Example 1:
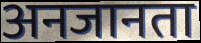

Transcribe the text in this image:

अनजानता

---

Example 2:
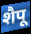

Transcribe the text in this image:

शैपू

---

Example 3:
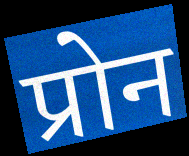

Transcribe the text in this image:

प्रोन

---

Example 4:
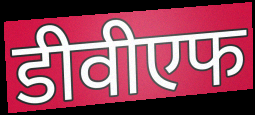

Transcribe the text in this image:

डीवीएफ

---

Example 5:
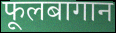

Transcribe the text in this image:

फूलबागान